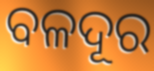
ବଳଦୂର